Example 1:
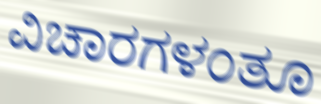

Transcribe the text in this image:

ವಿಚಾರಗಳಂತೂ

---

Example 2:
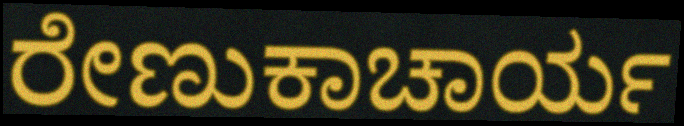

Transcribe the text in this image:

ರೇಣುಕಾಚಾರ್ಯ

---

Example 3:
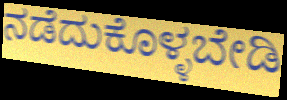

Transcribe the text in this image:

ನಡೆದುಕೊಳ್ಳಬೇಡಿ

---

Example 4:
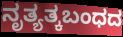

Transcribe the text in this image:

ನೃತ್ಯತ್ಕಬಂಧದ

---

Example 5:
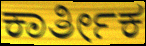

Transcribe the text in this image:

ಕಾರ್ತೀಕ